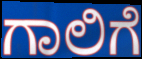
ಗಾಲಿಗೆ